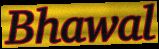
Bhawal